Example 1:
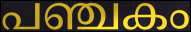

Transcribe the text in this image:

പഞ്ചകം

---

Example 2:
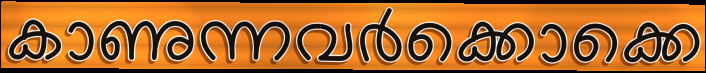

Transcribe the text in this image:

കാണുന്നവർക്കൊക്കെ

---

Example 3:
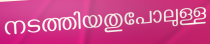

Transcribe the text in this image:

നടത്തിയതുപോലുള്ള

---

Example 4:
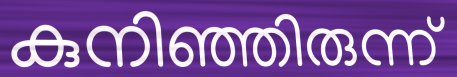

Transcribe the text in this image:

കുനിഞ്ഞിരുന്ന്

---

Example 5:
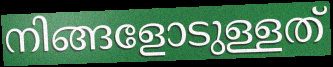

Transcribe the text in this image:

നിങ്ങളോടുള്ളത്